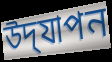
উদ্‌যাপন